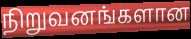
நிறுவனங்களான